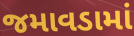
જમાવડામાં